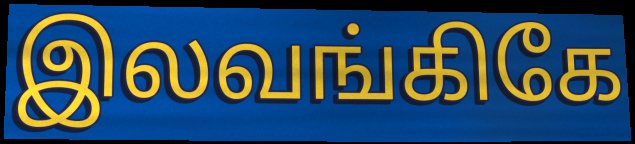
இலவங்கிகே